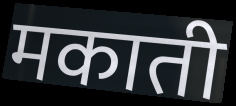
मकाती